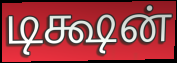
டிக்ஷன்